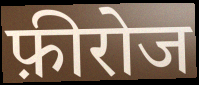
फ़ीरोज